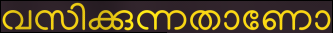
വസിക്കുന്നതാണോ